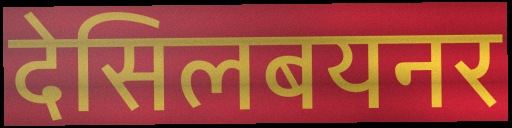
देसिलबयनर